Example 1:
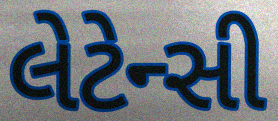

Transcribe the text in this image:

લેટેન્સી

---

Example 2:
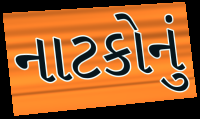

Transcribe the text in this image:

નાટકોનું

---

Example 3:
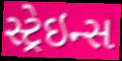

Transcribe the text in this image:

સ્ટ્રેઇન્સ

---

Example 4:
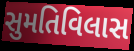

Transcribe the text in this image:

સુમતિવિલાસ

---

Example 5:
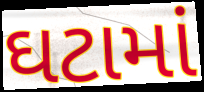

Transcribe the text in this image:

ઘટામાં